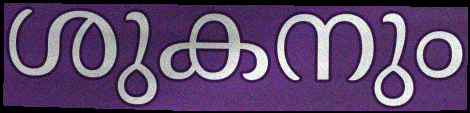
ശുകനും